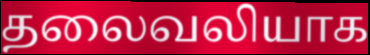
தலைவலியாக